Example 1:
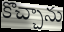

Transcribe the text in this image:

కొచ్చాను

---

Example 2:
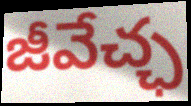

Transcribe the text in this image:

జీవేచ్ఛ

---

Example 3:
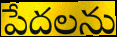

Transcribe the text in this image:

పేదలను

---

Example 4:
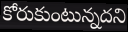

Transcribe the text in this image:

కోరుకుంటున్నదని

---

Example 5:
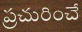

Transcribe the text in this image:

ప్రచురించే